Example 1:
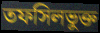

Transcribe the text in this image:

তফসিলভুক্ত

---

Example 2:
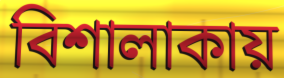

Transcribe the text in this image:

বিশালাকায়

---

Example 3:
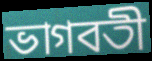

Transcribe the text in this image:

ভাগবতী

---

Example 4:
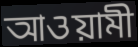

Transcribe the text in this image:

আওয়ামী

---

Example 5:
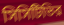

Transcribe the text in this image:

সিসিটিভির